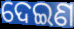
ଦେଇଣ